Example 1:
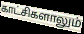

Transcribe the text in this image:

காட்சிகளாலும்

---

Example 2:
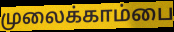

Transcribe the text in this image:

முலைக்காம்பை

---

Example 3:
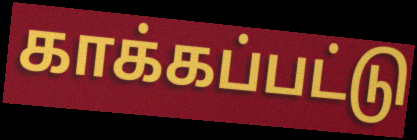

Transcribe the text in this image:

காக்கப்பட்டு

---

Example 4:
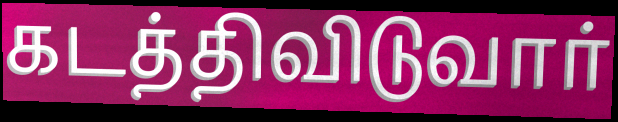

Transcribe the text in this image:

கடத்திவிடுவார்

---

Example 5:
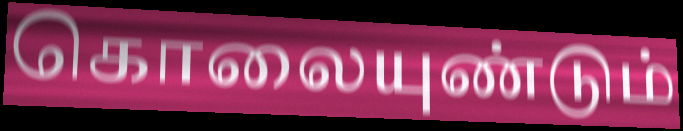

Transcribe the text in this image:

கொலையுண்டும்